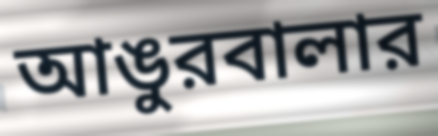
আঙুরবালার